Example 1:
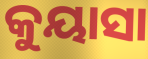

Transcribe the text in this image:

କୁୟାସା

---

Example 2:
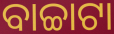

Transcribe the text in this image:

ବାଚ୍ଚାଟା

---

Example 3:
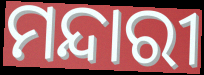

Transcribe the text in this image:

ମନ୍ଦାରୀ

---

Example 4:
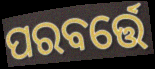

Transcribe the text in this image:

ପରବର୍ତ୍ତେ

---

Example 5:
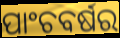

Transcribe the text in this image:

ପାଂଚବର୍ଷର